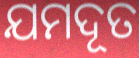
ଯମଦୂତ